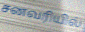
சனவரியில்